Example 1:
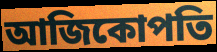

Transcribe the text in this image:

আজিকোপতি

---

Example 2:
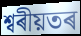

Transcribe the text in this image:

শ্বৰীয়তৰ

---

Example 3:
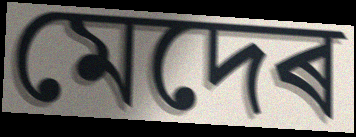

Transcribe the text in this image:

মেদেৰ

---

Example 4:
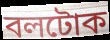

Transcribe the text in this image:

বলটোক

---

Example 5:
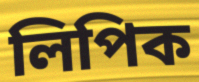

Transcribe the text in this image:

লিপিক